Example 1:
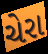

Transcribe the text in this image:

ચેરા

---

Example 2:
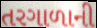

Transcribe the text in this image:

તરગાળાની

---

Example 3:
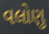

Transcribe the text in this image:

વલોણુ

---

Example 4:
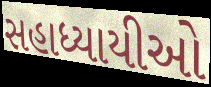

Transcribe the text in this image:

સહાધ્યાયીઓ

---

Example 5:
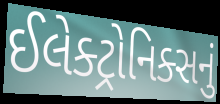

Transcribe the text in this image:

ઈલેક્ટ્રોનિક્સનું